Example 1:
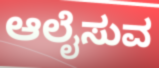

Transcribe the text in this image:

ಆಲೈಸುವ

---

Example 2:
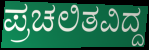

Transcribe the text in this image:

ಪ್ರಚಲಿತವಿದ್ದ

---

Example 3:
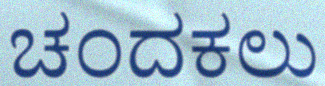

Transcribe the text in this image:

ಚಂದಕಲು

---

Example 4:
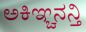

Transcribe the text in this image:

ಅಕಿಞ್ಚನನ್ತಿ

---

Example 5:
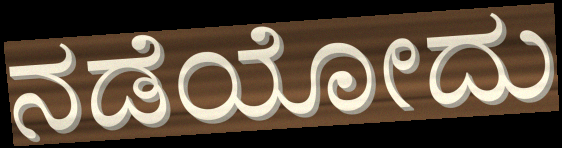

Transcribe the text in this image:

ನಡೆಯೋದು